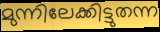
മുന്നിലേക്കിട്ടുതന്ന